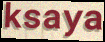
ksaya